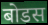
बोडस